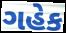
ગહેક